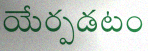
యేర్పడటం